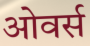
ओवर्स